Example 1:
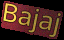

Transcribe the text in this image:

Bajaj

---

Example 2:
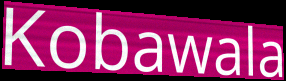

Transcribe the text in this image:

Kobawala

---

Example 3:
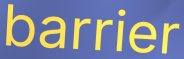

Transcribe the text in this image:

barrier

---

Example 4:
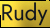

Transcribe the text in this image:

Rudy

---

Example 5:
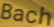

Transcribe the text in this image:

Bach